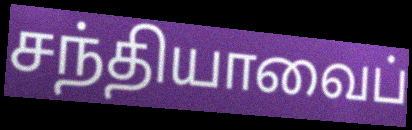
சந்தியாவைப்